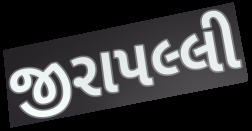
જીરાપલ્લી